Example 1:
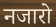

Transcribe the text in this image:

नजारो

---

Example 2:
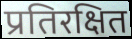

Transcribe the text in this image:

प्रतिरक्षित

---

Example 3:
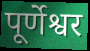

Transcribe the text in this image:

पूर्णेश्वर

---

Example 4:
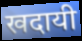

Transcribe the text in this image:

खदायी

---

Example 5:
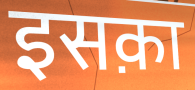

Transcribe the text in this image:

इसक़ा